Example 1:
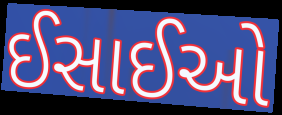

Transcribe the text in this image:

ઈસાઈઓ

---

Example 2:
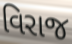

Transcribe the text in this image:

વિરાજ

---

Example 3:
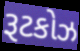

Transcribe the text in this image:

રૂટકોઝ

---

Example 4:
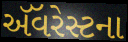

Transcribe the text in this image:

ઍૅવરેસ્ટના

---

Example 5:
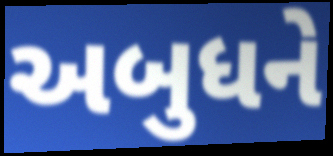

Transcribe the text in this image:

અબુધને